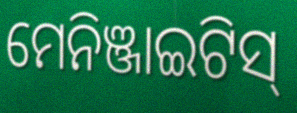
ମେନିଞ୍ଜାଇଟିସ୍